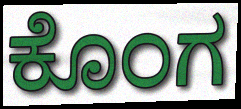
ಕೊಂಗ